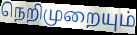
நெறிமுறையும்